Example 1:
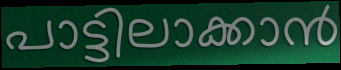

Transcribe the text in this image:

പാട്ടിലാക്കാൻ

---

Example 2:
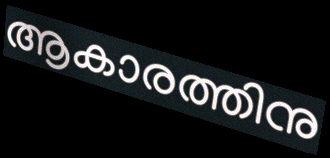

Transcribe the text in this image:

ആകാരത്തിനു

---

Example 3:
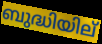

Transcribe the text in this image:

ബുദ്ധിയില്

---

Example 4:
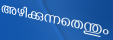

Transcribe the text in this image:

അഴിക്കുന്നതെന്തും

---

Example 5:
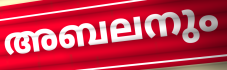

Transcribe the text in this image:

അബലനും